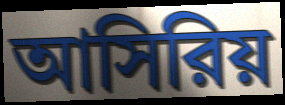
আসিরিয়